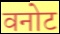
वनोट